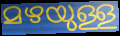
മഴയുള്ള